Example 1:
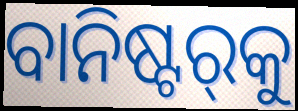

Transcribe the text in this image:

ବାନିଷ୍ଟର୍‍କୁ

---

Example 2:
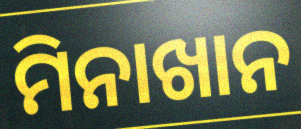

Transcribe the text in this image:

ମିନାଖାନ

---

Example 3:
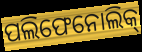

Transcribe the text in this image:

ପଲିଫେନୋଲିକ୍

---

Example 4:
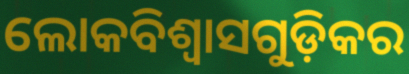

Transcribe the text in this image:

ଲୋକବିଶ୍ଵାସଗୁଡ଼ିକର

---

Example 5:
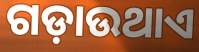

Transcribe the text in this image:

ଗଡ଼ାଉଥାଏ